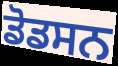
ਡੋਡਸਨ